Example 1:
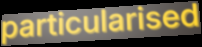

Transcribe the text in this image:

particularised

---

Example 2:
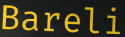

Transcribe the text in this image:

Bareli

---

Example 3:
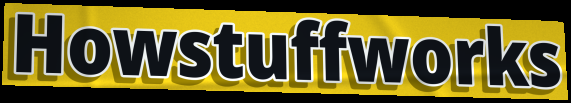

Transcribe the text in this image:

Howstuffworks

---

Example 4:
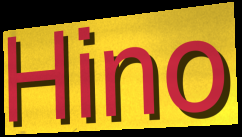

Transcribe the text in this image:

Hino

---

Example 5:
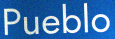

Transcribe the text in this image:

Pueblo